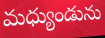
మధ్యుండును